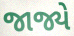
જાજ્યે